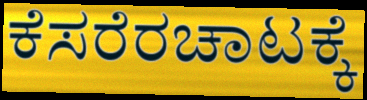
ಕೆಸರೆರಚಾಟಕ್ಕೆ